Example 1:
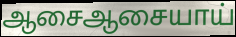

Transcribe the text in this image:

ஆசைஆசையாய்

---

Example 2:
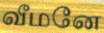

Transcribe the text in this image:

வீமனே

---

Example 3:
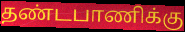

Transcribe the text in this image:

தண்டபாணிக்கு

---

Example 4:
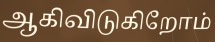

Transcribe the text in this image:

ஆகிவிடுகிறோம்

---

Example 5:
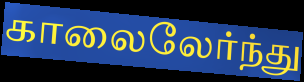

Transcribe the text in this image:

காலைலேர்ந்து